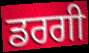
ਡਰਗੀ